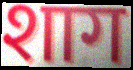
शाग